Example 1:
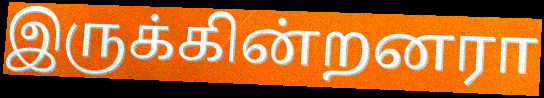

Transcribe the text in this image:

இருக்கின்றனரா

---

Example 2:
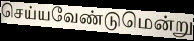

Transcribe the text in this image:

செய்யவேண்டுமென்று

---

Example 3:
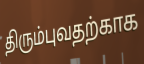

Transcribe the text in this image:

திரும்புவதற்காக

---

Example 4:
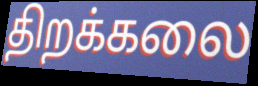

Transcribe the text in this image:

திறக்கலை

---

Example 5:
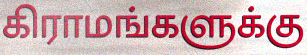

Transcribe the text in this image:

கிராமங்களுக்கு